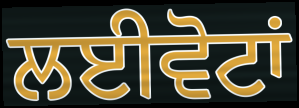
ਲਈਵੋਟਾਂ